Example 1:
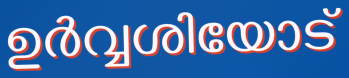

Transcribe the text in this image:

ഉർവ്വശിയോട്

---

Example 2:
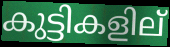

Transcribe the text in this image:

കുട്ടികളില്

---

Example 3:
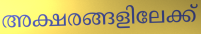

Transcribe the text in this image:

അക്ഷരങ്ങളിലേക്ക്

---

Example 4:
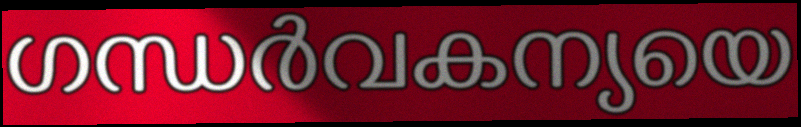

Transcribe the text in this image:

ഗന്ധർവകന്യയെ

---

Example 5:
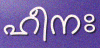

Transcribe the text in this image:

ഹീനഃ